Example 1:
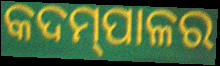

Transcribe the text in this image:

କଦମ୍‍ପାଳର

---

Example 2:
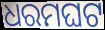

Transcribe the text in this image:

ଧରମଘଟ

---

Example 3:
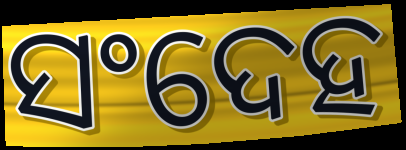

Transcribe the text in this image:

ସଂଦେହ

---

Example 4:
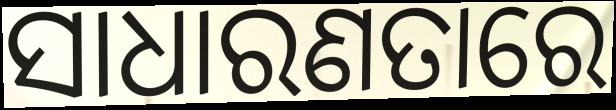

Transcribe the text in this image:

ସାଧାରଣତାରେ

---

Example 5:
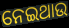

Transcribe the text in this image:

ନେଇଥାଉ